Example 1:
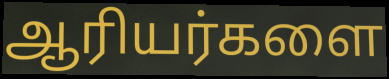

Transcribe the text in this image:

ஆரியர்களை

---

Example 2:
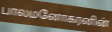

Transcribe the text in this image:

பாலமனோகரனின்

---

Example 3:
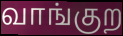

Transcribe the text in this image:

வாங்குற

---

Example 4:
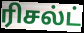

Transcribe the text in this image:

ரிசல்ட்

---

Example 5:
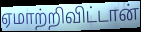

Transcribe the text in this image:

ஏமாற்றிவிட்டான்